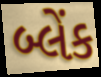
બ્લેંક